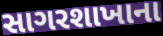
સાગરશાખાના